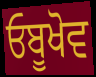
ਓਬੂਖੋਵ